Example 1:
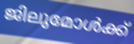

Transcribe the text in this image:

ജിലുമോൾക്ക്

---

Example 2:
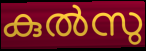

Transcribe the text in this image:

കുൽസു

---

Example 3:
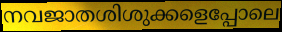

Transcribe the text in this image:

നവജാതശിശുക്കളെപ്പോലെ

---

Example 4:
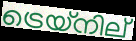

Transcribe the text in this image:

ട്രെയ്നില്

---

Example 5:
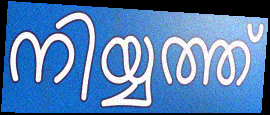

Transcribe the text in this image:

നിയ്യത്ത്